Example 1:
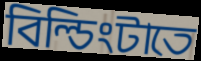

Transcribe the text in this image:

বিল্ডিংটাতে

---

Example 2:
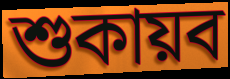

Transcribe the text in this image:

শুকায়ব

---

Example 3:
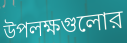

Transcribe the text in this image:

উপলক্ষগুলোর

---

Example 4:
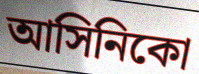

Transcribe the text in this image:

আসিনিকো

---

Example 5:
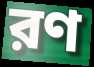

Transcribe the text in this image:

রণ